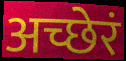
अच्छेरं